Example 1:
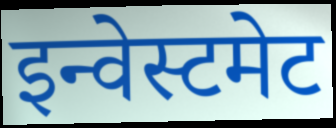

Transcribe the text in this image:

इन्वेस्टमेट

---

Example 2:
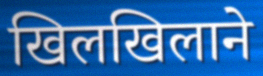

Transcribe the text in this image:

खिलखिलाने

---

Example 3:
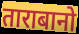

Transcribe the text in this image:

ताराबानो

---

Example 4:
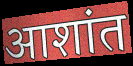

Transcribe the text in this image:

आशांत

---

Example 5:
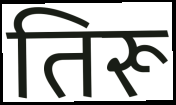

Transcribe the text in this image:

तिरू